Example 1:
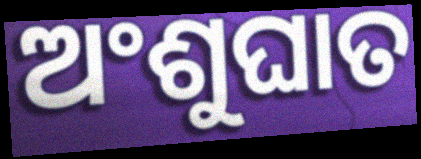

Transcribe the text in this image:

ଅଂଶୁଘାତ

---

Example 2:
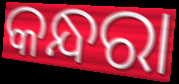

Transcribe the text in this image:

କନ୍ଧରା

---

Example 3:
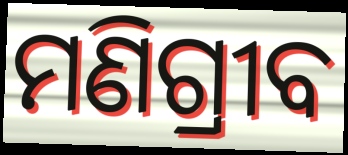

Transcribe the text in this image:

ମଣିଗ୍ରୀବ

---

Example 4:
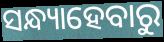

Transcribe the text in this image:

ସନ୍ଧ୍ୟାହେବାରୁ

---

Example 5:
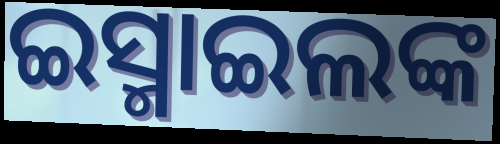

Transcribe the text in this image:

ଇସ୍ମାଇଲଙ୍କ